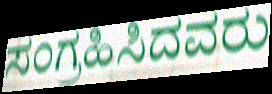
ಸಂಗ್ರಹಿಸಿದವರು